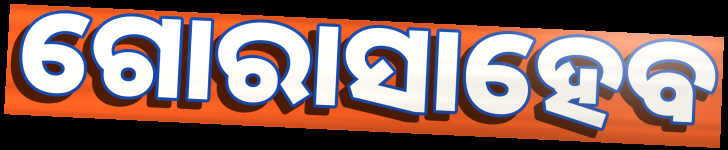
ଗୋରାସାହେବ